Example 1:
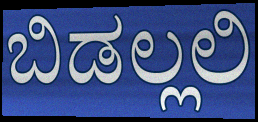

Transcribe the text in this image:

ಬಿಡಲ್ಲಲಿ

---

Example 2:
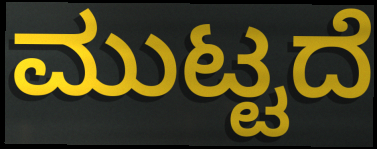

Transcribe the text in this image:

ಮುಟ್ಟದೆ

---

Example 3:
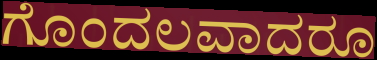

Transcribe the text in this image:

ಗೊಂದಲವಾದರೂ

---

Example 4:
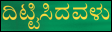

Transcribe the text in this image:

ದಿಟ್ಟಿಸಿದವಳು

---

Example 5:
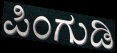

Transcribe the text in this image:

ಪಿಂಗುಡಿ